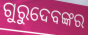
ଗୁରୁଦେବଙ୍କର